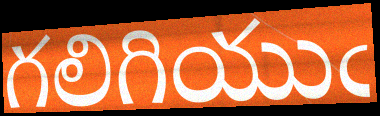
గలిగియుఁ